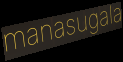
manasugala